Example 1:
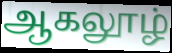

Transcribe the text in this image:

ஆகலூழ்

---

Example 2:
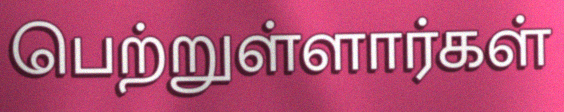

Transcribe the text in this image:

பெற்றுள்ளார்கள்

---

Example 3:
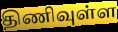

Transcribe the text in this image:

திணிவுள்ள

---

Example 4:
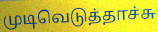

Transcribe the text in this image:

முடிவெடுத்தாச்சு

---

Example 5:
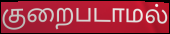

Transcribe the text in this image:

குறைபடாமல்